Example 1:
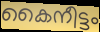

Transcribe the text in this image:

കൈനീട്ടം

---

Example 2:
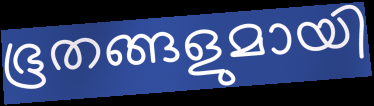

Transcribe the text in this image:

ഭൂതങ്ങളുമായി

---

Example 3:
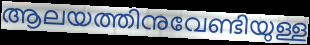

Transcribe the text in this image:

ആലയത്തിനുവേണ്ടിയുള്ള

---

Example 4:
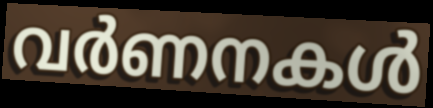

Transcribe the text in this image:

വർണനകൾ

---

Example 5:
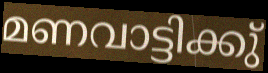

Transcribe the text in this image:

മണവാട്ടിക്കു്